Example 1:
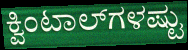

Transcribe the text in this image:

ಕ್ವಿಂಟಾಲ್‌ಗಳಷ್ಟು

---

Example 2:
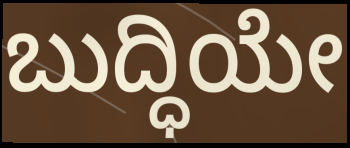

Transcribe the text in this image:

ಬುದ್ಧಿಯೇ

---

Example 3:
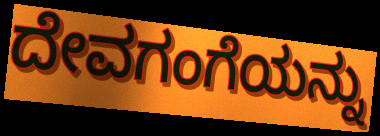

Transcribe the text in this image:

ದೇವಗಂಗೆಯನ್ನು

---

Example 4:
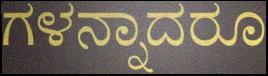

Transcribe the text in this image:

ಗಳನ್ನಾದರೂ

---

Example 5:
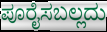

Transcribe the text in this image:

ಪೂರೈಸಬಲ್ಲದು